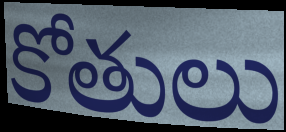
కోతులు